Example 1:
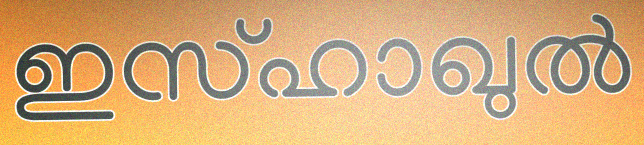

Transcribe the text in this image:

ഇസ്ഹാഖുൽ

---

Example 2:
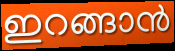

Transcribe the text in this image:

ഇറങ്ങാൻ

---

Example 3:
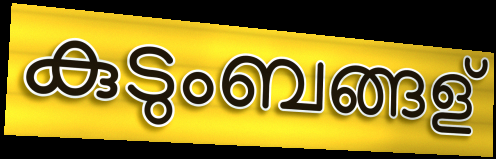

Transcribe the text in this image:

കുടുംബങ്ങള്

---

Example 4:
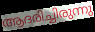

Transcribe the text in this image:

ആദരിച്ചിരുന്നു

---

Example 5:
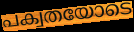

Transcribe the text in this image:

പക്വതയോടെ